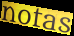
notas